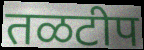
तळटीप